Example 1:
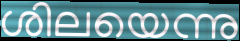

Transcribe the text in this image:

ശിലയെന്നു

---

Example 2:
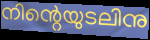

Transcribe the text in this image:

നിന്റെയുടലിനു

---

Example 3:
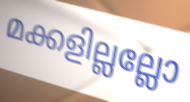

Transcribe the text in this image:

മക്കളില്ലല്ലോ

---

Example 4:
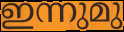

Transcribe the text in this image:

ഇന്നുമു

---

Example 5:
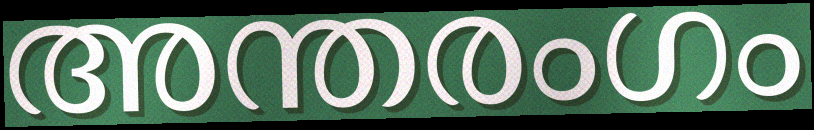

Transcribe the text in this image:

അന്തരംഗം